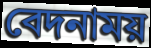
বেদনাময়